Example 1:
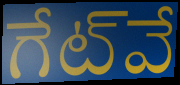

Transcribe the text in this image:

గేట్‌వే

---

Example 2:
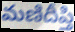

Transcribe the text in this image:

మణిదీప్తి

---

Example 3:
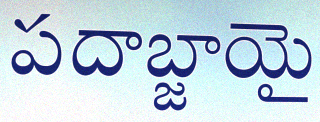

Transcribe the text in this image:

పదాబ్జాయై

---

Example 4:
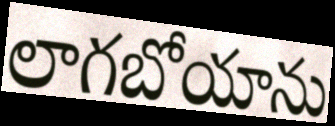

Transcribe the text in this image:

లాగబోయాను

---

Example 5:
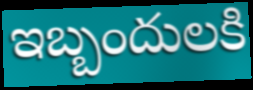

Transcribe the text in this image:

ఇబ్బందులకి